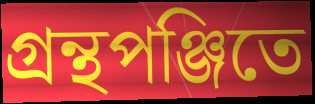
গ্রন্থপঞ্জিতে